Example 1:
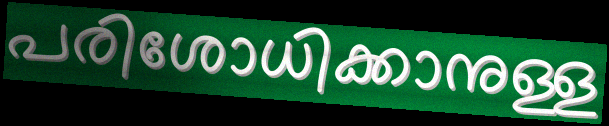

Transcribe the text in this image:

പരിശോധിക്കാനുള്ള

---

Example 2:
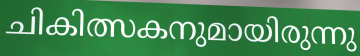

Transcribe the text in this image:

ചികിത്സകനുമായിരുന്നു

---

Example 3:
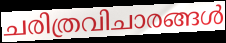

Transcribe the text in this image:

ചരിത്രവിചാരങ്ങൾ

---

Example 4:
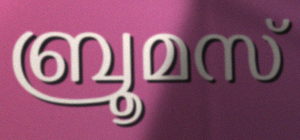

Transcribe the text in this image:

ബ്രൂമസ്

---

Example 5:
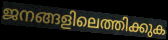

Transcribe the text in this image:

ജനങ്ങളിലെത്തിക്കുക